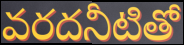
వరదనీటితో